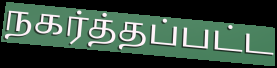
நகர்த்தப்பட்ட